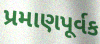
પ્રમાણપૂર્વક